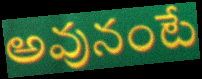
అవునంటే